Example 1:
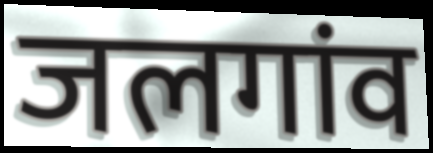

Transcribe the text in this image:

जलगांव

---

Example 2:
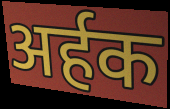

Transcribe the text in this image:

अर्हक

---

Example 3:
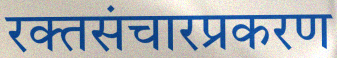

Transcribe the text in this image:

रक्तसंचारप्रकरण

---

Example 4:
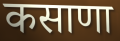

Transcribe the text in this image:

कसाणा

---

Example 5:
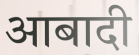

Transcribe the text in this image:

आबादी